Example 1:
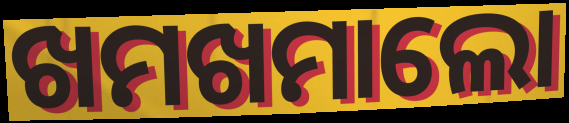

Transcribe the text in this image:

ଖମଖମାଲୋ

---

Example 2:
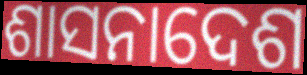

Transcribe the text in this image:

ଶାସନାଦେଶ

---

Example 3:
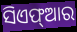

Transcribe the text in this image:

ସିଏଫ୍ଆର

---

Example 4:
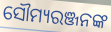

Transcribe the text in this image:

ସୌମ୍ୟରଞ୍ଜନଙ୍କ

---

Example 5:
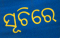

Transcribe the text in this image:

ସୂଚିରେ